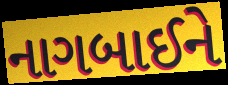
નાગબાઈને